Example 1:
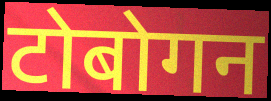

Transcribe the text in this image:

टोबोगन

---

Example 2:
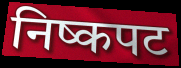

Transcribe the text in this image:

निष्कपट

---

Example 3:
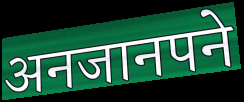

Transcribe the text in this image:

अनजानपने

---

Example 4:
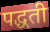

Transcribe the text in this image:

पद्धती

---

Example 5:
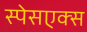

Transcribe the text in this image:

स्‍पेसएक्‍स